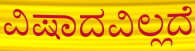
ವಿಷಾದವಿಲ್ಲದೆ